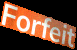
Forfeit